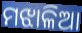
ମଝାଳିଆ